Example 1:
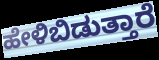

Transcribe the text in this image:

ಹೇಳಿಬಿಡುತ್ತಾರೆ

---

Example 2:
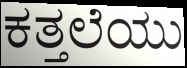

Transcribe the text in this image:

ಕತ್ತಲೆಯು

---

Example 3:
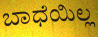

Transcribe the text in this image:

ಬಾಧೆಯಿಲ್ಲ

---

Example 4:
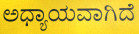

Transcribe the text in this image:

ಅಧ್ಯಾಯವಾಗಿದೆ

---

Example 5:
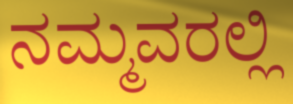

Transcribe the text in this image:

ನಮ್ಮವರಲ್ಲಿ